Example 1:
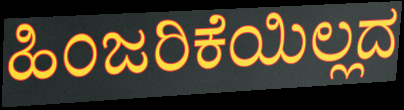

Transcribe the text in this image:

ಹಿಂಜರಿಕೆಯಿಲ್ಲದ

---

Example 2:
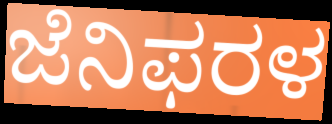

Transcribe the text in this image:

ಜೆನಿಫರಳ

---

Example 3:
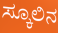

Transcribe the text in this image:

ಸ್ಕೂಲಿನ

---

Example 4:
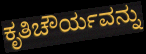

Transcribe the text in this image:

ಕೃತಿಚೌರ್ಯವನ್ನು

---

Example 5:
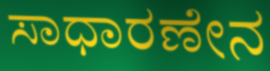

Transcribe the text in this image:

ಸಾಧಾರಣೇನ